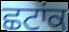
ਛਟਾਂਕ